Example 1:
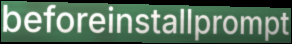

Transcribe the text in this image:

beforeinstallprompt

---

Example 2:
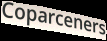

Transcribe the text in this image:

Coparceners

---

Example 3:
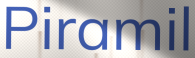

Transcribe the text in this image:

Piramil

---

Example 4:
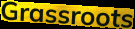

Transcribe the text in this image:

Grassroots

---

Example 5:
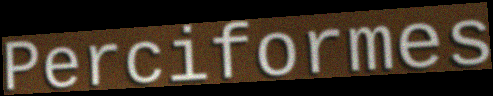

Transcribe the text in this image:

Perciformes